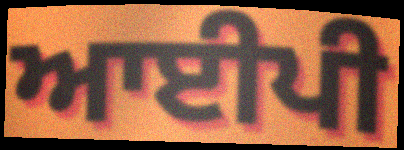
ਆਈਪੀ